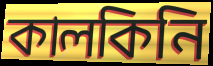
কালকিনি